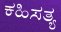
ಕಹಿಸತ್ಯ